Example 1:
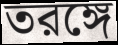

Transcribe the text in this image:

তরঙ্গে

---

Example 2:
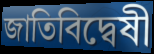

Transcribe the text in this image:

জাতিবিদ্বেষী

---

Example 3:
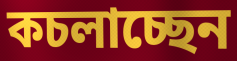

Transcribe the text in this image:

কচলাচ্ছেন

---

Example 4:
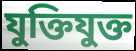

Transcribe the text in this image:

যুক্তিযুক্ত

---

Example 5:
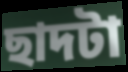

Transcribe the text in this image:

ছাদটা